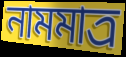
নামমাত্র